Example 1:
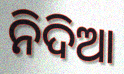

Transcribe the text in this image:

ନିଦିଆ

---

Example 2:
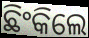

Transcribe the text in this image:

ଛିଂକିଲେ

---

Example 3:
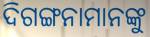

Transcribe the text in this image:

ଦିଗଙ୍ଗନାମାନଙ୍କୁ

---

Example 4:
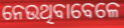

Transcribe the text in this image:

ନେଉଥିବାବେଳେ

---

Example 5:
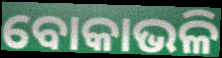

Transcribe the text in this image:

ବୋକାଭଳି